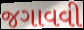
જગાવવી